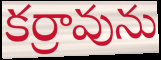
కర్రావును